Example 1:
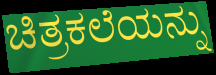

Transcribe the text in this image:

ಚಿತ್ರಕಲೆಯನ್ನು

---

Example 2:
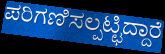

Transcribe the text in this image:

ಪರಿಗಣಿಸಲ್ಪಟ್ಟಿದ್ದಾರೆ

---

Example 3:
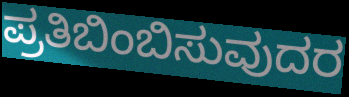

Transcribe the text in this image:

ಪ್ರತಿಬಿಂಬಿಸುವುದರ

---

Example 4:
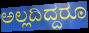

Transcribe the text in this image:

ಅಲ್ಲದಿದ್ದರೂ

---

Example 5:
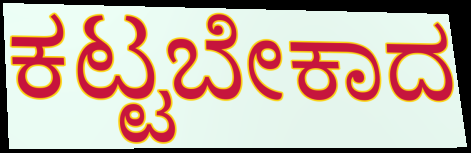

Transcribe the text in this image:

ಕಟ್ಟಬೇಕಾದ